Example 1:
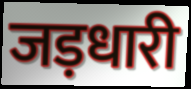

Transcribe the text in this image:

जड़धारी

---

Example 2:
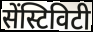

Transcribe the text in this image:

सेंस्टिविटी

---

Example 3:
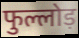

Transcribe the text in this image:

फुल्लोड़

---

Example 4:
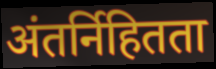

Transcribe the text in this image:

अंतर्निहितता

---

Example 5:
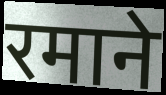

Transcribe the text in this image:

रमाने